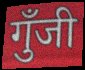
गुँजी